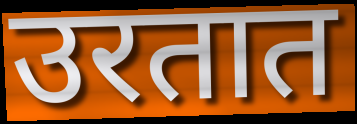
उरतात